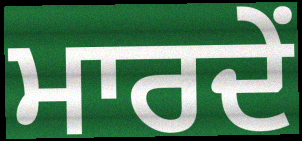
ਮਾਰਦੇਂ